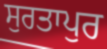
ਸੁਰਤਾਪੁਰ